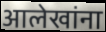
आलेखांना